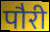
पौरी